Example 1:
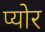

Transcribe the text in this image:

प्योर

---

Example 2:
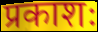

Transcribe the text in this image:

प्रकाशः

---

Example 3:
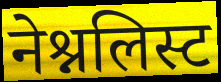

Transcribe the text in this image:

नेश्नलिस्ट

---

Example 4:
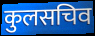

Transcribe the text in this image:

कुलसचिव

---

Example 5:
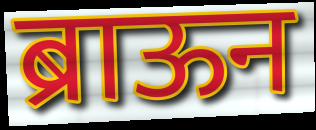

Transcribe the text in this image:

ब्राऊन